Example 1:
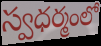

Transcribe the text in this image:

స్వధర్మంలో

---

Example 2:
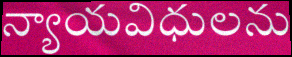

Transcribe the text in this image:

న్యాయవిధులను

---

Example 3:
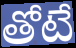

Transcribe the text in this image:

తోటే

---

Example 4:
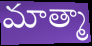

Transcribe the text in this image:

మాత్మా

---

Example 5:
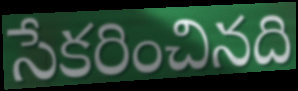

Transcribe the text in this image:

సేకరించినది